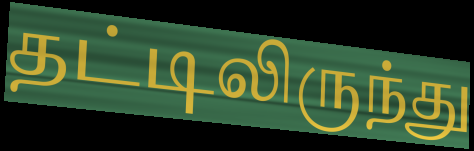
தட்டிலிருந்து